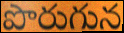
పొరుగున